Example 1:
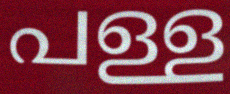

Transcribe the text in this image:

പള്ള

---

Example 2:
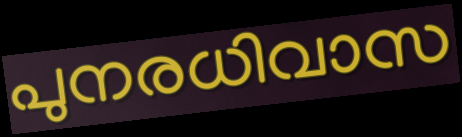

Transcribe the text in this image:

പുനരധിവാസ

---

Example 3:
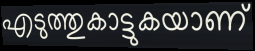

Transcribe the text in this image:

എടുത്തുകാട്ടുകയാണ്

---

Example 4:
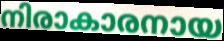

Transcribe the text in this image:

നിരാകാരനായ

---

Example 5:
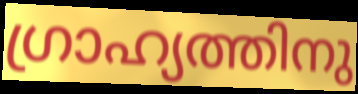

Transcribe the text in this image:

ഗ്രാഹ്യത്തിനു